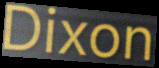
Dixon